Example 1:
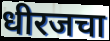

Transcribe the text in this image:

धीरजचा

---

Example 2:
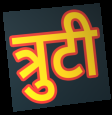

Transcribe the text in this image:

त्रुटी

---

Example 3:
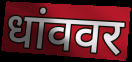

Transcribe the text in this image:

धांववर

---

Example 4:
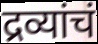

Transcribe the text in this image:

द्रव्यांचं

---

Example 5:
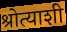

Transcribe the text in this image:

श्रोत्याशी